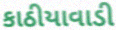
કાઠીયાવાડી